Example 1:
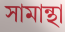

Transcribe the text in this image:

সামান্থা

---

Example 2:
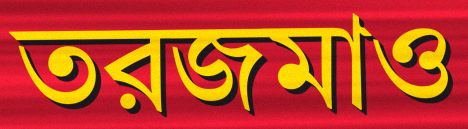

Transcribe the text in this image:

তরজমাও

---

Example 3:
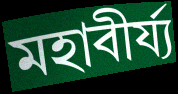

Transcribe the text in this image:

মহাবীর্য্য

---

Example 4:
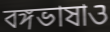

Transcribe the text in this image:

বঙ্গভাষাও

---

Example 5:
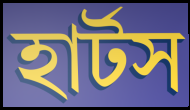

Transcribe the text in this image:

হার্টস